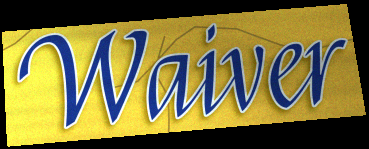
Waiver